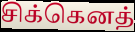
சிக்கெனத்